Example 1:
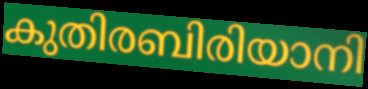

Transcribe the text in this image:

കുതിരബിരിയാനി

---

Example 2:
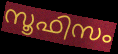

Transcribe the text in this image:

സൂഫിസം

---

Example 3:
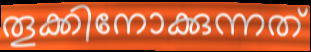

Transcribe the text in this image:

തൂക്കിനോക്കുന്നത്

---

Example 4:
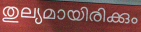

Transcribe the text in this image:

തുല്യമായിരിക്കും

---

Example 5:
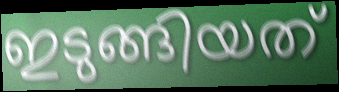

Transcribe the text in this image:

ഇടുങ്ങിയത്